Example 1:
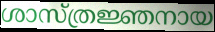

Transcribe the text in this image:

ശാസ്ത്രജ്ഞനായ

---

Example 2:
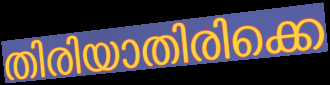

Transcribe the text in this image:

തിരിയാതിരിക്കെ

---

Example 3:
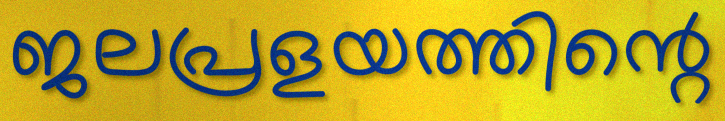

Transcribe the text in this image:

ജലപ്രളയത്തിന്റെ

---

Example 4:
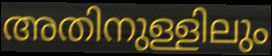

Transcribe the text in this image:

അതിനുള്ളിലും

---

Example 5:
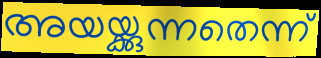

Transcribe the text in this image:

അയയ്ക്കുന്നതെന്ന്